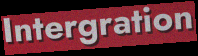
Intergration